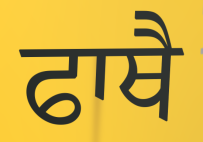
ਫਾਥੈ